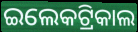
ଇଲେକଟ୍ରିକାଲ